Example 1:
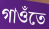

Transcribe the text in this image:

গাওঁতে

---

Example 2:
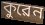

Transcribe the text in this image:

কুৱেন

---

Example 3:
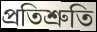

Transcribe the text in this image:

প্ৰতিশ্ৰুতি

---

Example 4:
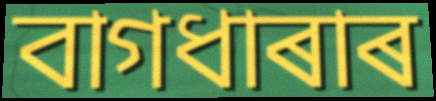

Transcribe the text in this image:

বাগধাৰাৰ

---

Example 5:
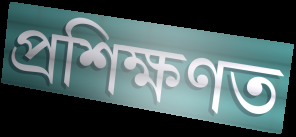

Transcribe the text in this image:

প্ৰশিক্ষণত